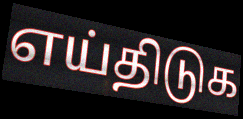
எய்திடுக